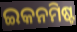
ଇକନମିଷ୍ଟ